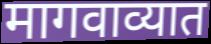
मागवाव्यात